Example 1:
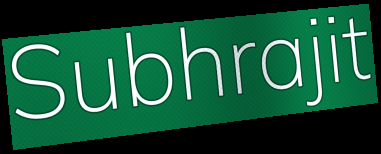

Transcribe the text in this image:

Subhrajit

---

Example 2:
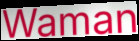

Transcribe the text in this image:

Waman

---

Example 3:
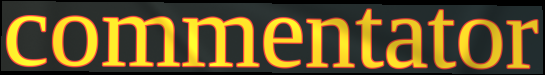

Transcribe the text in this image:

commentator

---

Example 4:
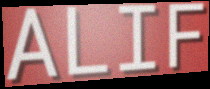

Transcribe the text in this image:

ALIF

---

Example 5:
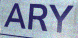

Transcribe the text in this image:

ARY